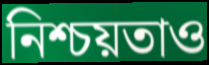
নিশ্চয়তাও